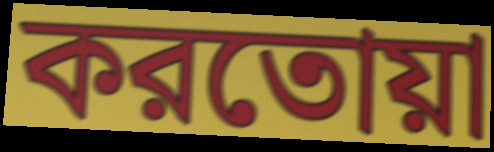
করতোয়া